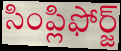
సింప్లిఫోర్జ్